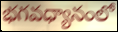
భగవధ్యానంలో